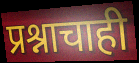
प्रश्नाचाही